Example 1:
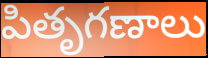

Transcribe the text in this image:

పితృగణాలు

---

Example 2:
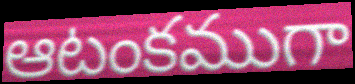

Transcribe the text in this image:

ఆటంకముగా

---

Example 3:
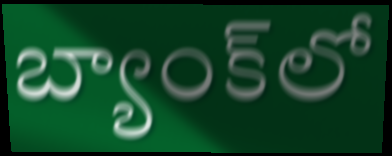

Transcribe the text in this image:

బ్యాంక్‌లో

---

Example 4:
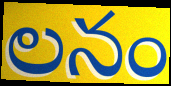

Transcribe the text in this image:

లనం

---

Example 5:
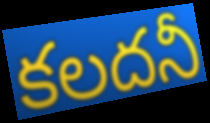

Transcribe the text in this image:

కలదనీ